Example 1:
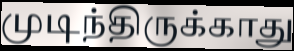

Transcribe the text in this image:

முடிந்திருக்காது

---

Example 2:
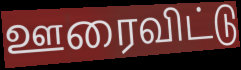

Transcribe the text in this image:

ஊரைவிட்டு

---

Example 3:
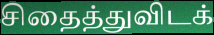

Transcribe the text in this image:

சிதைத்துவிடக்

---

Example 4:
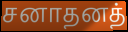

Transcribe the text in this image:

சனாதனத்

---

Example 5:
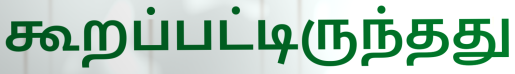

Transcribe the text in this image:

கூறப்பட்டிருந்தது